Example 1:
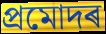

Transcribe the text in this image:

প্ৰমোদৰ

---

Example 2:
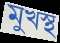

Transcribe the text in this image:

মুখস্থ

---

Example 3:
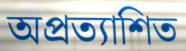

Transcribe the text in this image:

অপ্ৰত্যাশিত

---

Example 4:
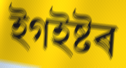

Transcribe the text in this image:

ইগইষ্টৰ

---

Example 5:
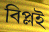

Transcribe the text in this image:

বিপ্লই